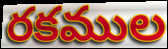
రకముల